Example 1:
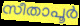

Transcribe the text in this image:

സീതാപൂർ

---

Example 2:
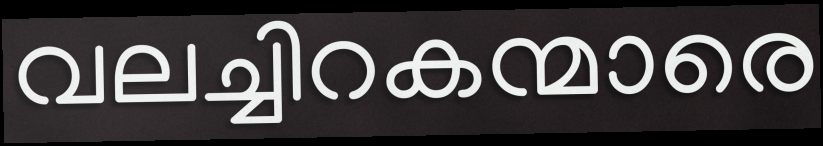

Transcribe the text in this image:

വലച്ചിറകന്മാരെ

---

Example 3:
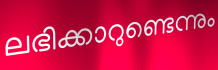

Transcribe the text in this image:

ലഭിക്കാറുണ്ടെന്നും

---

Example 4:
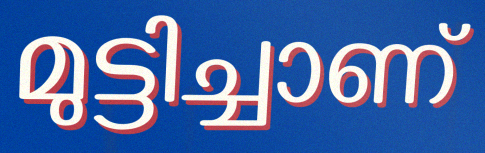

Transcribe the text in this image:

മുട്ടിച്ചാണ്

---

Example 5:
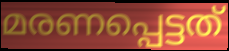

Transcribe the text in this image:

മരണപ്പെട്ടത്